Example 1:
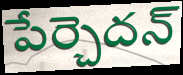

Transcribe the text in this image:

పేర్చెదన్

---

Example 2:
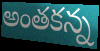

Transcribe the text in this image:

అంతకన్న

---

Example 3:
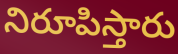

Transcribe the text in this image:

నిరూపిస్తారు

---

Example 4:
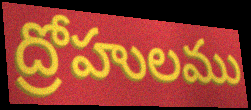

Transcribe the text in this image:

ద్రోహులము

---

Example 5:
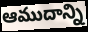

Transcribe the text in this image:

ఆముదాన్ని